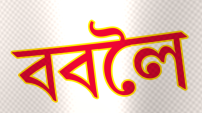
ববলৈ